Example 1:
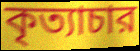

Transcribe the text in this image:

কৃত্যাচার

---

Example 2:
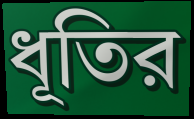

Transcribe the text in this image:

ধূতির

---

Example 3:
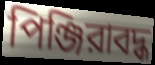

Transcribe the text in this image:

পিঞ্জিরাবদ্ধ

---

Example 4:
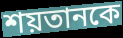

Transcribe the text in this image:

শয়তানকে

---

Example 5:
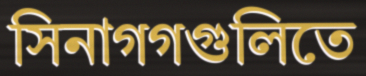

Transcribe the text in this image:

সিনাগগগুলিতে